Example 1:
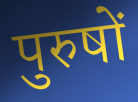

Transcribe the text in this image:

पुरुषों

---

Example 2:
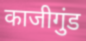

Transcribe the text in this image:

काजीगुंड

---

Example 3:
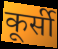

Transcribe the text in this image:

कूर्सी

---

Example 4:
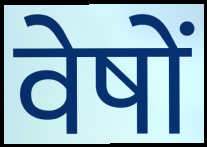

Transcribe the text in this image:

वेषों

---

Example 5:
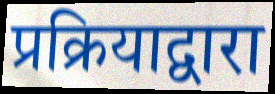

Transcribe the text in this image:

प्रक्रियाद्वारा